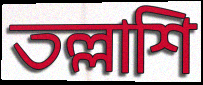
তল্লাশি